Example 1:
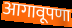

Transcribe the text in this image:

आगावूपणा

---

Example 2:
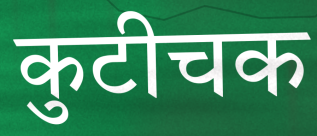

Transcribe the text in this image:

कुटीचक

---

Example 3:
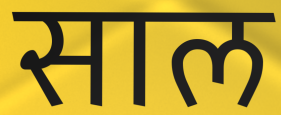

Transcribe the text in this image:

साल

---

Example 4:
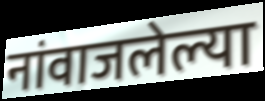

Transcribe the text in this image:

नांवाजलेल्या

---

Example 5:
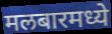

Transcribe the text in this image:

मलबारमध्ये